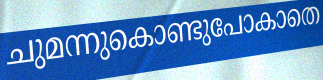
ചുമന്നുകൊണ്ടുപോകാതെ